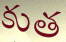
కుత